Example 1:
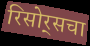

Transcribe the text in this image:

रिसोर्सचा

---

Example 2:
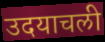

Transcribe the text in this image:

उदयाचली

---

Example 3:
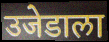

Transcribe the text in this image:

उजेडाला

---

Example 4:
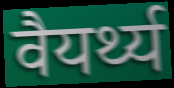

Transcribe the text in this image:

वैयर्थ्य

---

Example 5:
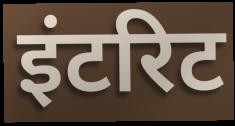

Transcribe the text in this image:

इंटरिट